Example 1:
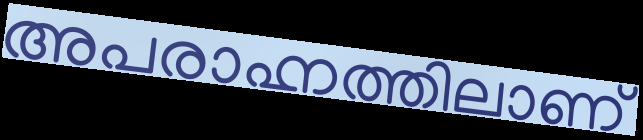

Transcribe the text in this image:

അപരാഹ്നത്തിലാണ്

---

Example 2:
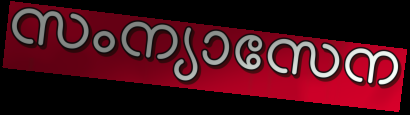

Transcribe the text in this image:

സംന്യാസേന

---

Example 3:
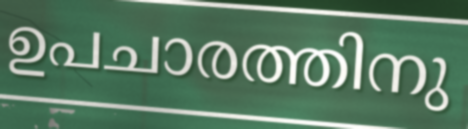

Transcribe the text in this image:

ഉപചാരത്തിനു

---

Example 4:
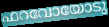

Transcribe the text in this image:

ഫറവോയോടു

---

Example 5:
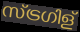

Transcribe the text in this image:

സ്ട്രഗിള്